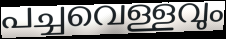
പച്ചവെള്ളവും